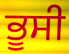
ਭੂਸੀ